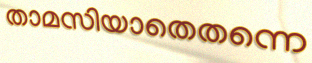
താമസിയാതെതന്നെ